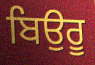
ਬਿਉਰੂ